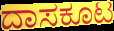
ದಾಸಕೂಟ